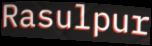
Rasulpur